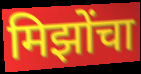
मिझोंचा